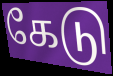
கேடு